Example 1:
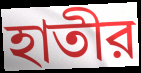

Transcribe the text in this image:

হাতীর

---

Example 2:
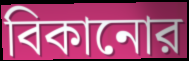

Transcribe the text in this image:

বিকানোর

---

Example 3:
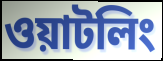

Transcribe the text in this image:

ওয়াটলিং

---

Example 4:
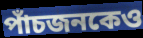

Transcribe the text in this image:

পাঁচজনকেও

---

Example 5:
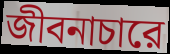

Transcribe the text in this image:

জীবনাচারে